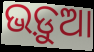
ଭଡ଼ୁଆ